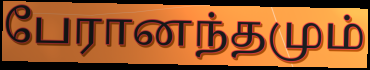
பேரானந்தமும்